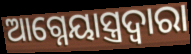
ଆଗ୍ନେୟାସ୍ତ୍ରଦ୍ୱାରା